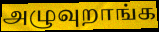
அழுவுறாங்க